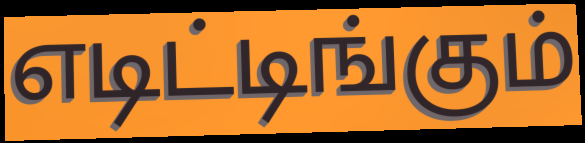
எடிட்டிங்கும்